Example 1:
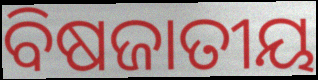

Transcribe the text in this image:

ବିଷଜାତୀୟ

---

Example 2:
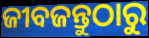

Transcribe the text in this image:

ଜୀବଜନ୍ତୁଠାରୁ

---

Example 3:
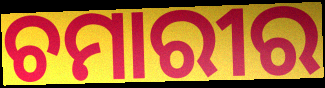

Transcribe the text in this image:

ଚମାରୀର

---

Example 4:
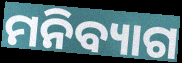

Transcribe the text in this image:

ମନିବ୍ୟାଗ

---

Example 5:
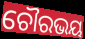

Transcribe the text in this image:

ଚୌରଭୟ